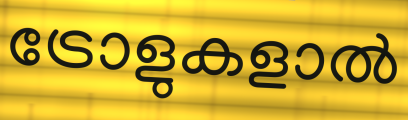
ട്രോളുകളാൽ